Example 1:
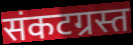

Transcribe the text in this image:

संकटग्रस्त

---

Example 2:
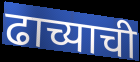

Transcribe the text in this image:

ढाच्याची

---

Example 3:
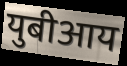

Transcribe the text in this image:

युबीआय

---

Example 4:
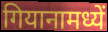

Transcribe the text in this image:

गियानामध्यें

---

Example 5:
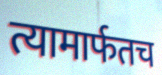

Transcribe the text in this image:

त्यामार्फतच